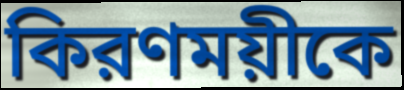
কিরণময়ীকে